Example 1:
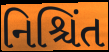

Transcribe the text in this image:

નિશ્ચિંત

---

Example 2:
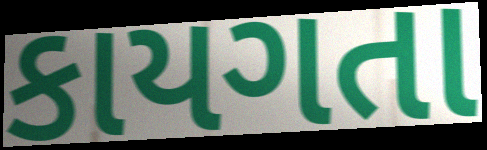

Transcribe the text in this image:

કાયગતા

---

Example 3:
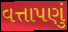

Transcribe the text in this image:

વત્તાપણું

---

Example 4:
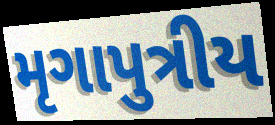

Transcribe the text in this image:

મૃગાપુત્રીય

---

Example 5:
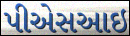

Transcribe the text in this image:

પીએસઆઇ